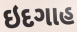
ઇદગાહ